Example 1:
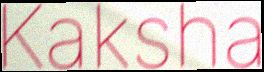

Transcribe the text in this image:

Kaksha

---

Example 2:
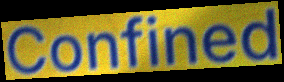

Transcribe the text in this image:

Confined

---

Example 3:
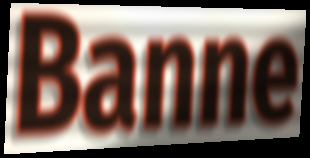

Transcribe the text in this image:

Banne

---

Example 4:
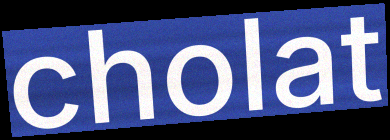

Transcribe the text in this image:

cholat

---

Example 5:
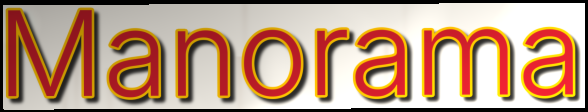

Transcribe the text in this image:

Manorama